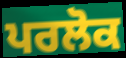
ਪਰਲੋਕ